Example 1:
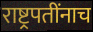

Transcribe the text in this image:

राष्ट्रपतींनाच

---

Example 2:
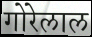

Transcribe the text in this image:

गोरेलाल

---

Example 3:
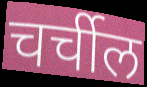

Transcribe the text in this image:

चर्चील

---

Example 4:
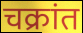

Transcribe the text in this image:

चक्रांत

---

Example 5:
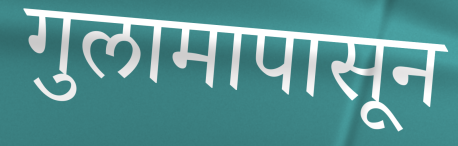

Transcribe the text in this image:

गुलामापासून